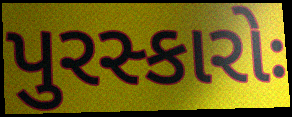
પુરસ્કારોઃ